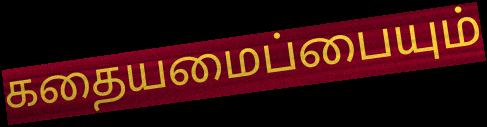
கதையமைப்பையும்